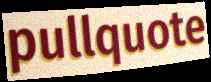
pullquote